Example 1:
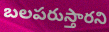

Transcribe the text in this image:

బలపరుస్తారని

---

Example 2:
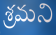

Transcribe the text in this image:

శ్రమని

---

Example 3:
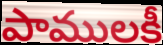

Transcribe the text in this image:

పాములకీ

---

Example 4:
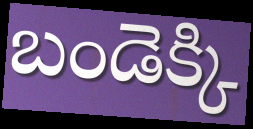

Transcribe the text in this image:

బండెక్కి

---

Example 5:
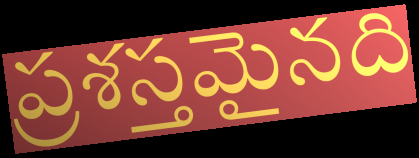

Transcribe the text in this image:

ప్రశస్తమైనది